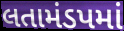
લતામંડપમાં